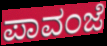
ಪಾವಂಜೆ